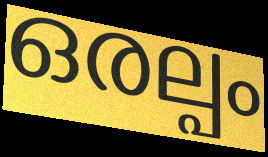
ഒരല്പം